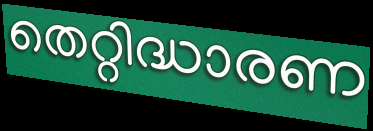
തെറ്റിദ്ധാരണ